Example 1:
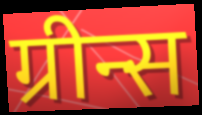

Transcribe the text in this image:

ग्रीन्स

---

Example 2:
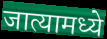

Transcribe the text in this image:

जात्यामध्ये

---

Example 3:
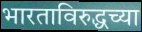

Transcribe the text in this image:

भारताविरुद्धच्या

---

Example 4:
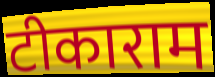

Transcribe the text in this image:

टीकाराम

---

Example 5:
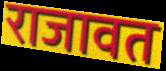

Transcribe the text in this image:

राजावत